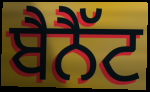
ਬੈਨੈੱਟ